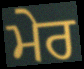
ਮੇਰ